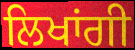
ਲਿਖਾਂਗੀ